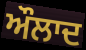
ਔਲਾਦ